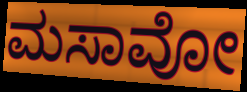
ಮಸಾವೋ